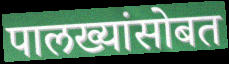
पालख्यांसोबत